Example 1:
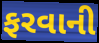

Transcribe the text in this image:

ફરવાની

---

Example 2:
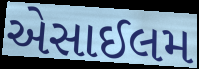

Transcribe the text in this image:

એસાઈલમ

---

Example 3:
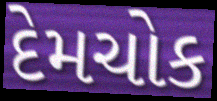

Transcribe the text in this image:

દેમચોક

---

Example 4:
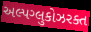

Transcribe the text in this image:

અલ્પગ્લુકોઝરક્ત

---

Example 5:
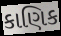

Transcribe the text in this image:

કાણિક